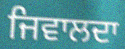
ਜਿਵਾਲਦਾ